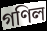
গণিল